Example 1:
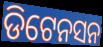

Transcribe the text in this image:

ଡିଟେନସନ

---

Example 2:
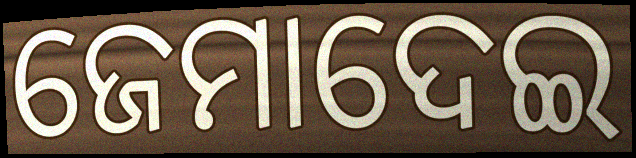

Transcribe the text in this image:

ଜେମାଦେଇ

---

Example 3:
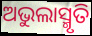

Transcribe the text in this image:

ଅଭୁଲାସ୍ମୃତି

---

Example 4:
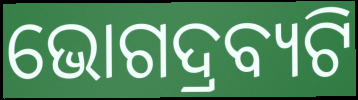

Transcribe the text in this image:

ଭୋଗଦ୍ରବ୍ୟଟି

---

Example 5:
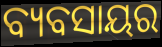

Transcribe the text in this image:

ବ୍ୟବସାୟର